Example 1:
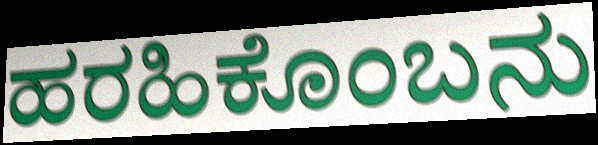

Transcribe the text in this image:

ಹರಹಿಕೊಂಬನು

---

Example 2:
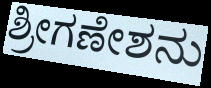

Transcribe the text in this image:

ಶ್ರೀಗಣೇಶನು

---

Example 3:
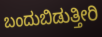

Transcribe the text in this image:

ಬಂದುಬಿಡುತ್ತೀರಿ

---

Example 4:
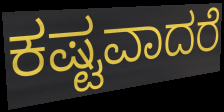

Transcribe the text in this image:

ಕಷ್ಟವಾದರೆ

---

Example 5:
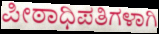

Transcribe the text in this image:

ಪೀಠಾಧಿಪತಿಗಳಾಗಿ